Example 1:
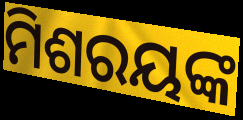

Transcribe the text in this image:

ମିଶରୟଙ୍କ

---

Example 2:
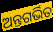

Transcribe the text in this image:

ଅନ୍ତଗର୍ଭିତ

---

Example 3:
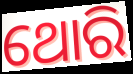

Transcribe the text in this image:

ଥୋରି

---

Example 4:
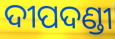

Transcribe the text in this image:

ଦୀପଦଣ୍ଡୀ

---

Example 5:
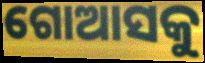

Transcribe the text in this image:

ଗୋଆସକୁ